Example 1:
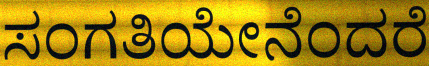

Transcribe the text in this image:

ಸಂಗತಿಯೇನೆಂದರೆ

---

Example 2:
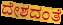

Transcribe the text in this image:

ದೇಶದಂತೆ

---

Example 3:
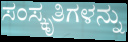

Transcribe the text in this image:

ಸಂಸ್ಕೃತಿಗಳನ್ನು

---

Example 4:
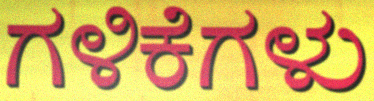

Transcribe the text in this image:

ಗಳಿಕೆಗಳು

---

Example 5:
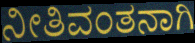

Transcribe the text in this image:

ನೀತಿವಂತನಾಗಿ